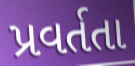
પ્રવર્તતા